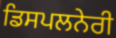
ਡਿਸਪਲਨੇਰੀ